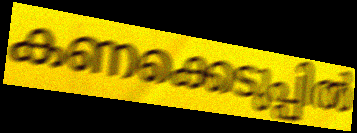
കണക്കെടുപ്പിൽ